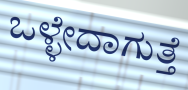
ಒಳ್ಳೇದಾಗುತ್ತೆ